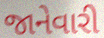
જાનેવારી